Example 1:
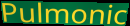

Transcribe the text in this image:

Pulmonic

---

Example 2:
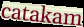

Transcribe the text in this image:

catakam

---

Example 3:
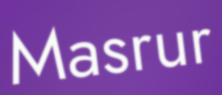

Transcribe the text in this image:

Masrur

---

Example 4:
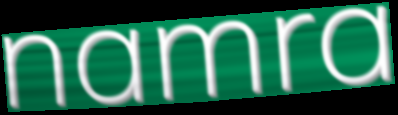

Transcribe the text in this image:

namra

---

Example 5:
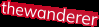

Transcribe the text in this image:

thewanderer